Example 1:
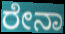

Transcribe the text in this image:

ರೇನಾ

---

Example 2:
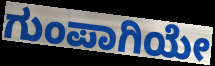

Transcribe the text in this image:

ಗುಂಪಾಗಿಯೇ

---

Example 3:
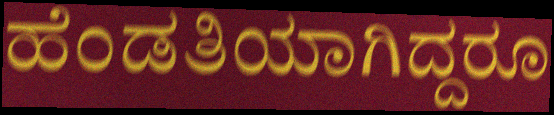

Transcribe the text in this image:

ಹೆಂಡತಿಯಾಗಿದ್ದರೂ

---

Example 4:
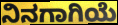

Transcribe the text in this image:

ನಿನಗಾಗಿಯೆ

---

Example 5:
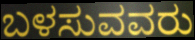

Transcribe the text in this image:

ಬಳಸುವವರು